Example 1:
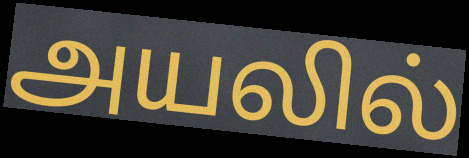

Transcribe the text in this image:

அயலில்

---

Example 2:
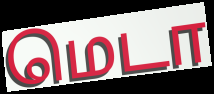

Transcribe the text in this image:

மெடா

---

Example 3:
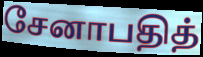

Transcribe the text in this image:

சேனாபதித்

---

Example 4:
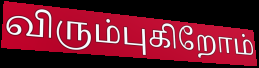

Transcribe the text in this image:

விரும்புகிறோம்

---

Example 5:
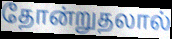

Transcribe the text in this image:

தோன்றுதலால்